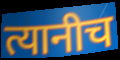
त्यानीच